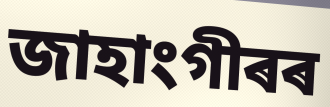
জাহাংগীৰৰ